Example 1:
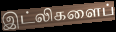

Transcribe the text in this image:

இட்லிகளைப்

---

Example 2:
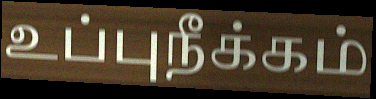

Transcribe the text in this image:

உப்புநீக்கம்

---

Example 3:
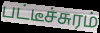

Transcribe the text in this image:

பட்டீச்சுரம்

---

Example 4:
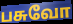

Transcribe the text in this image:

பசுவோ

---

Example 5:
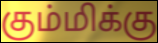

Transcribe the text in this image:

கும்மிக்கு